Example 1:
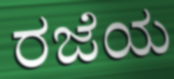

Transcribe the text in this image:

ರಜೆಯ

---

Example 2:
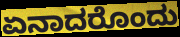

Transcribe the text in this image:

ಏನಾದರೊಂದು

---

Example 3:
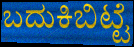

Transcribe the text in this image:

ಬದುಕಿಬಿಟ್ಟೆ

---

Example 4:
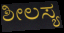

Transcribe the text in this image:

ಶೀಲಸ್ಯ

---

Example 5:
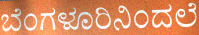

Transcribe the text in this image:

ಬೆಂಗಳೂರಿನಿಂದಲೆ